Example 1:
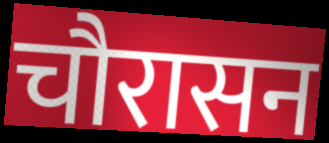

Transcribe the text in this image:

चौरासन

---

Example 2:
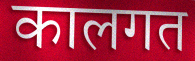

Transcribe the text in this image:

कालगत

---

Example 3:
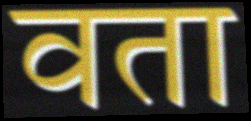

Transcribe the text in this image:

वता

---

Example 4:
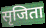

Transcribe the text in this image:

सृजिता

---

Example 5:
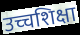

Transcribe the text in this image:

उच्‍चशिक्षा